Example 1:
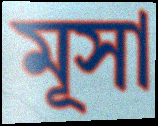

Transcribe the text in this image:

মূসা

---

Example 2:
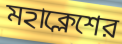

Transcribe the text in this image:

মহাক্লেশের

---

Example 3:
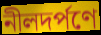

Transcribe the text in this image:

নীলদর্পণে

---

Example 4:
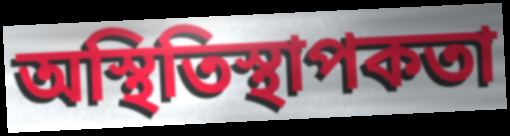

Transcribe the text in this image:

অস্থিতিস্থাপকতা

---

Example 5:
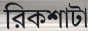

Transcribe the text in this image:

রিকশাটা